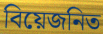
বিয়েজনিত